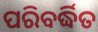
ପରିବର୍ଦ୍ଧିତ